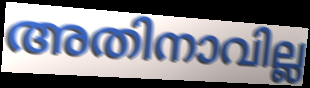
അതിനാവില്ല